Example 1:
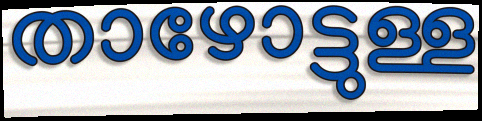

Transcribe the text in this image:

താഴോട്ടുള്ള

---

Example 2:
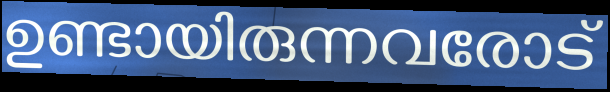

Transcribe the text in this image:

ഉണ്ടായിരുന്നവരോട്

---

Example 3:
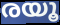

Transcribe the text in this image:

രയൂ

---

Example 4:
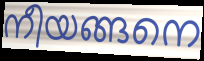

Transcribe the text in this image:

നീയങ്ങനെ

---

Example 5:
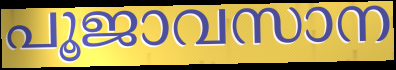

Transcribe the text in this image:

പൂജാവസാന